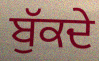
ਬੁੱਕਦੇ